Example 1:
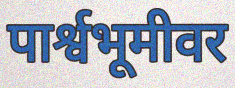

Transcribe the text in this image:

पार्श्वभूमीवर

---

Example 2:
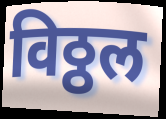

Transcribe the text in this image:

विठ्ठल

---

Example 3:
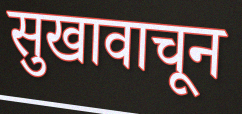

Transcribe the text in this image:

सुखावाचून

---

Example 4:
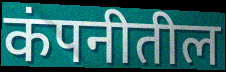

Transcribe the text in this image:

कंपनीतील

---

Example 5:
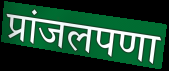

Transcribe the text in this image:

प्रांजलपणा